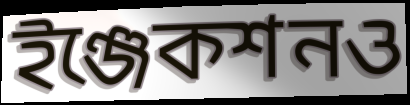
ইঞ্জেকশনও